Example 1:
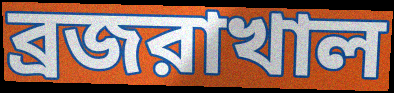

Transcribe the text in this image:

ব্রজরাখাল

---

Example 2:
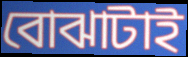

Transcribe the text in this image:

বোঝাটাই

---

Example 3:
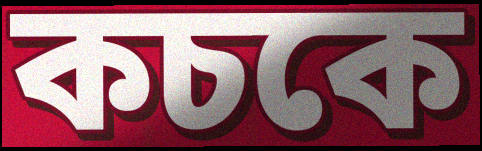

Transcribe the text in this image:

কচকে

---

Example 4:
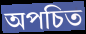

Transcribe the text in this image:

অপচিত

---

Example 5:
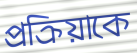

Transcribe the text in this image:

প্রক্রিয়াকে